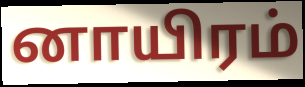
னாயிரம்